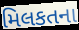
મિલકતના